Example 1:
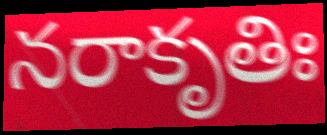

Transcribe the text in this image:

నరాకృతిః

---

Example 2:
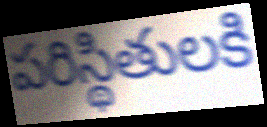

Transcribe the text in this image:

పరిస్థితులకి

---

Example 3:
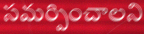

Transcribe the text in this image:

సమర్పించాలని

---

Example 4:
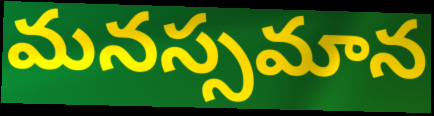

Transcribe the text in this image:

మనస్సమాన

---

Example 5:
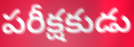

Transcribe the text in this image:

పరీక్షకుడు